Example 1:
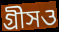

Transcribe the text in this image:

গ্রীসও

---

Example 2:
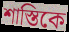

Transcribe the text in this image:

শাস্তিকে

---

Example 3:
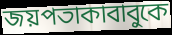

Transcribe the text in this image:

জয়পতাকাবাবুকে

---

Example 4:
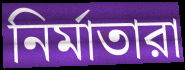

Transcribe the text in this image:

নির্মাতারা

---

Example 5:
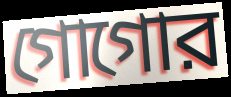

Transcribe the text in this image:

গোগোর